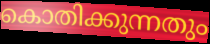
കൊതിക്കുന്നതും